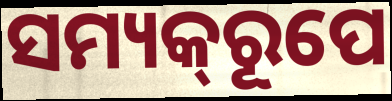
ସମ୍ୟକ୍‌ରୂପେ